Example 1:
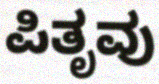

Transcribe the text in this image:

ಪಿತೃವು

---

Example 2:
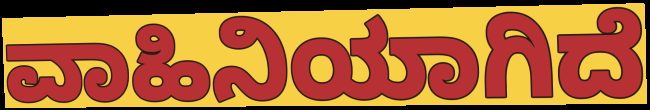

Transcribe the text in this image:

ವಾಹಿನಿಯಾಗಿದೆ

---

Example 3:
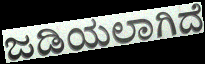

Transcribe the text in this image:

ಜಡಿಯಲಾಗಿದೆ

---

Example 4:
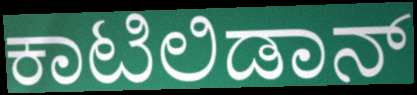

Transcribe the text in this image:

ಕಾಟಿಲಿಡಾನ್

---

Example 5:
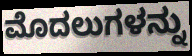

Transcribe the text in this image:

ಮೊದಲುಗಳನ್ನು